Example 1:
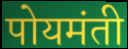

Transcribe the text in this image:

पोयमंती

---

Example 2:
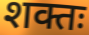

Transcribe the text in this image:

शक्तः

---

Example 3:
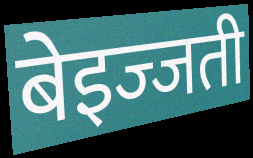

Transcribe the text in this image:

बेइज्‍जती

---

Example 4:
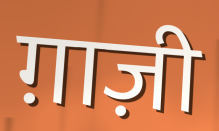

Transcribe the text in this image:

ग़ाज़ी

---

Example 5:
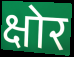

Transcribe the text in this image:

क्षोर